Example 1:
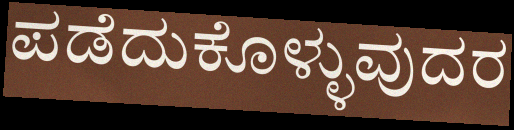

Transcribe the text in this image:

ಪಡೆದುಕೊಳ್ಳುವುದರ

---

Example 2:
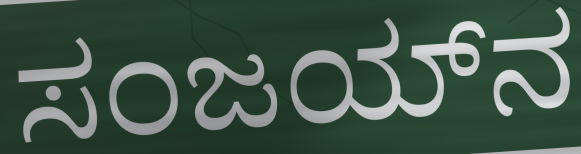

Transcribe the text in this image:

ಸಂಜಯ್‌ನ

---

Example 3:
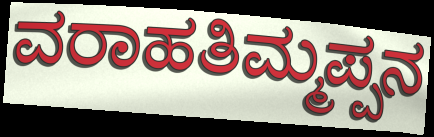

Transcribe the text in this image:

ವರಾಹತಿಮ್ಮಪ್ಪನ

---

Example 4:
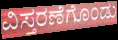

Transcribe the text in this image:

ವಿಸ್ತರಣೆಗೊಂಡು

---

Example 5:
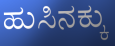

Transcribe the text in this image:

ಹುಸಿನಕ್ಕು